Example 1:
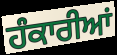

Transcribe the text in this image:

ਹੰਕਾਰੀਆਂ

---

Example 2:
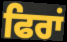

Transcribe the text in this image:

ਫਿਰਾਂ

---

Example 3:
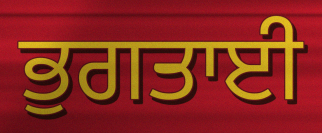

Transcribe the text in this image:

ਭੁਗਤਾਈ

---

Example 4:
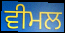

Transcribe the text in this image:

ਵੀਮਲ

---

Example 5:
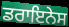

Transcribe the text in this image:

ਡਰਾਇਨੇਸ